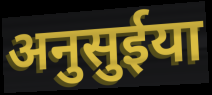
अनुसुईया